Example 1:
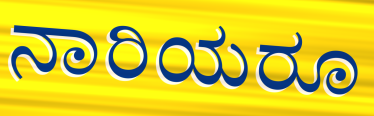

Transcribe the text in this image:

ನಾರಿಯರೂ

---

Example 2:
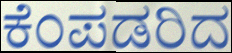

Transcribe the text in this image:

ಕೆಂಪಡರಿದ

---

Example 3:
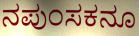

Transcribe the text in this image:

ನಪುಂಸಕನೂ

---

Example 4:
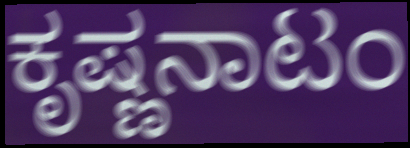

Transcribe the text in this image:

ಕೃಷ್ಣನಾಟಂ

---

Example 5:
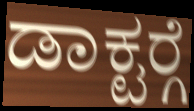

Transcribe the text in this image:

ಡಾಕ್ಟರ್‍ಗೆ